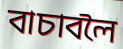
বাচাবলৈ